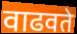
वाढवते